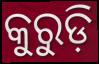
କୁରୁଡ଼ି